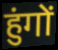
हुंगों